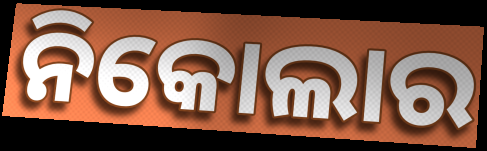
ନିକୋଲାର